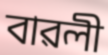
বাৱলী